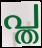
പ്ത